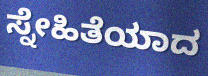
ಸ್ನೇಹಿತೆಯಾದ